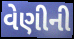
વેણીની